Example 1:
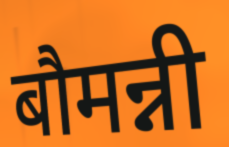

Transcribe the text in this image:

बौमन्नी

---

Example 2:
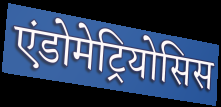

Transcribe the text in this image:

एंडोमेट्रियोसिस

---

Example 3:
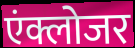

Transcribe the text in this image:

एंक्लोजर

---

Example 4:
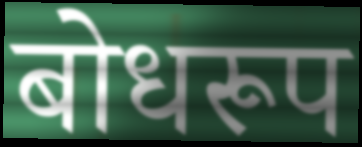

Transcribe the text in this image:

बोधरूप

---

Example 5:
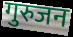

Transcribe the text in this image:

गुरुजन